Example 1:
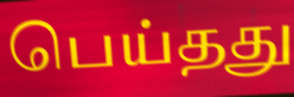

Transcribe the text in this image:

பெய்தது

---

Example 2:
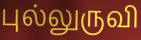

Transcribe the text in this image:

புல்லுருவி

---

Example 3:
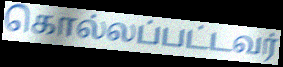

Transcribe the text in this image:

கொல்லப்பட்டவர்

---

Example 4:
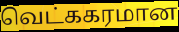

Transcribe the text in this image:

வெட்ககரமான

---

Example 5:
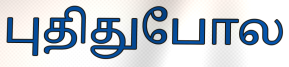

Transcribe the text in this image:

புதிதுபோல